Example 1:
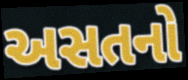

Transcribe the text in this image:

અસતનો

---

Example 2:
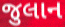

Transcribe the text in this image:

જુલાન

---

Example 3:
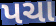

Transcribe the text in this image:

પચા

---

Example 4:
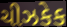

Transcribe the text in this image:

ચીઝકેક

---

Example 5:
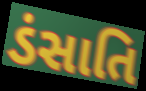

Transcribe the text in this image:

ડંસાતિ